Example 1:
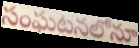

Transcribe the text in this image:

సంఘటనలోనూ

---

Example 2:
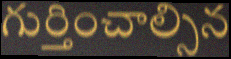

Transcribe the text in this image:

గుర్తించాల్సిన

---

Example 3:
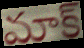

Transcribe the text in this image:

మాక్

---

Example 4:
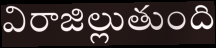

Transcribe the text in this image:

విరాజిల్లుతుంది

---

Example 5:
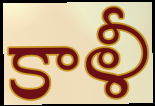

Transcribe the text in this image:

కాళీ